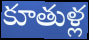
కూతుళ్ల